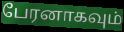
பேரனாகவும்